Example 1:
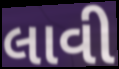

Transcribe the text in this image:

લાવી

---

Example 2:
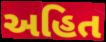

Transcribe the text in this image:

અહિત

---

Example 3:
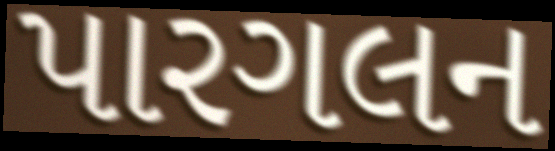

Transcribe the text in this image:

પારગલન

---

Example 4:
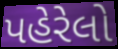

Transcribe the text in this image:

પહેરેલો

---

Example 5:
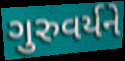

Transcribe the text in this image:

ગુરુવર્યને